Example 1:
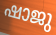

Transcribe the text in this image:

ഷാജു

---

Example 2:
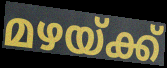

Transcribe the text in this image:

മഴയ്ക്ക്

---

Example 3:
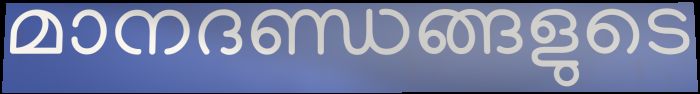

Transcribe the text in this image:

മാനദണ്ഡങ്ങളുടെ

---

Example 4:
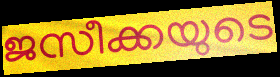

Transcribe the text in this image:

ജസീക്കയുടെ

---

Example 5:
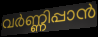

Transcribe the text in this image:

വർണ്ണിപ്പാൻ